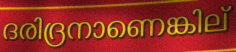
ദരിദ്രനാണെങ്കില്